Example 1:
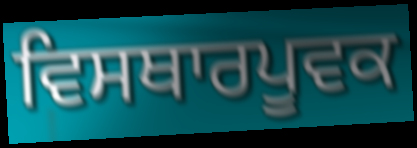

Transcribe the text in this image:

ਵਿਸਥਾਰਪੂਵਕ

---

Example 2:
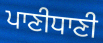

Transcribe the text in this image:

ਪਾਣੀਧਾਣੀ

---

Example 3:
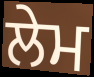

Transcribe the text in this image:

ਲੇਮ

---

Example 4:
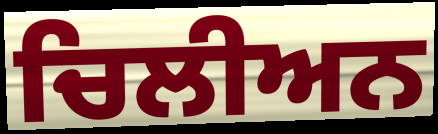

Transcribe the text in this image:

ਚਿਲੀਅਨ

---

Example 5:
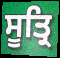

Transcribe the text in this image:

ਸੂਤ੍ਰਿ